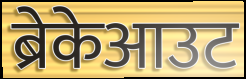
ब्रेकेआउट